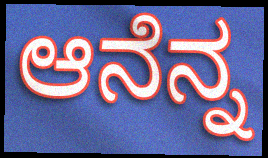
ಆನೆನ್ನ